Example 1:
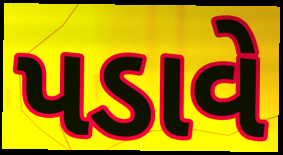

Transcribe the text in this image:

પડાવે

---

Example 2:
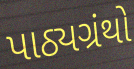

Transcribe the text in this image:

પાઠ્યગ્રંથો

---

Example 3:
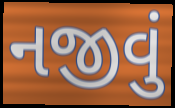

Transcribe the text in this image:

નજીવું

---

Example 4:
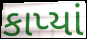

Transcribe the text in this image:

કાપ્યાં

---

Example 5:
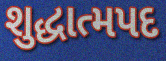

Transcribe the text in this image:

શુદ્ધાત્મપદ